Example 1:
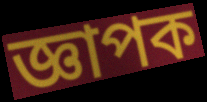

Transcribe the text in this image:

জ্ঞাপক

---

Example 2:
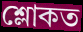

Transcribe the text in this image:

শ্লোকত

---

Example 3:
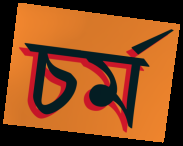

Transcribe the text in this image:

চৰ্ম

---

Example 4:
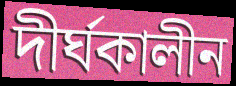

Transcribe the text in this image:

দীৰ্ঘকালীন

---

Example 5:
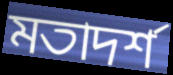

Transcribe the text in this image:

মতাদৰ্শ